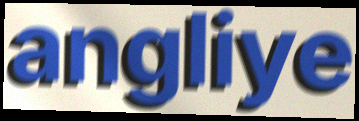
angliye